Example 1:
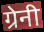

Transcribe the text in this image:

ग्रेनी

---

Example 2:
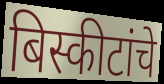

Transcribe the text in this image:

बिस्कीटांचे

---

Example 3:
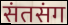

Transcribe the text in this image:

संतसंग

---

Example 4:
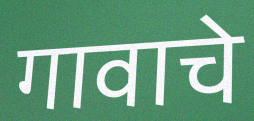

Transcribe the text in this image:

गावाचे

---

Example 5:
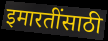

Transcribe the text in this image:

इमारतींसाठी